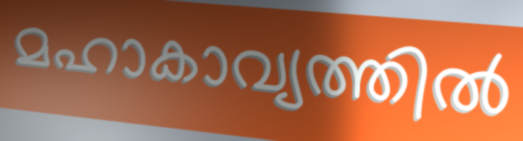
മഹാകാവ്യത്തിൽ